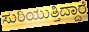
ಸುರಿಯುತ್ತಿದ್ದಾರೆ